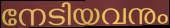
നേടിയവനും